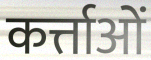
कर्त्ताओं